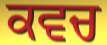
ਕਵਚ